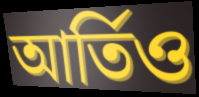
আর্তিও